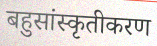
बहुसांस्कृतीकरण